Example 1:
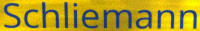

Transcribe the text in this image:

Schliemann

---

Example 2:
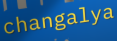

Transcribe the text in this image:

changalya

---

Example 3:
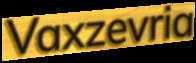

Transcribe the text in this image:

Vaxzevria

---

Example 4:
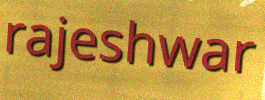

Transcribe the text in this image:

rajeshwar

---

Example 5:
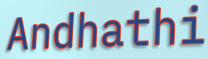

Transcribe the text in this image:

Andhathi